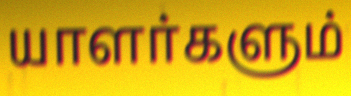
யாளர்களும்